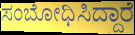
ಸಂಬೋಧಿಸಿದ್ದಾರೆ